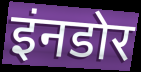
इंनडोर